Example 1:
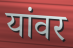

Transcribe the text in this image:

यांवर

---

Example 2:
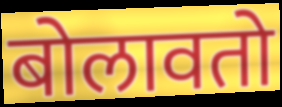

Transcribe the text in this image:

बोलावतो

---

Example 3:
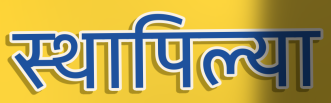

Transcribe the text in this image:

स्थापिल्या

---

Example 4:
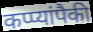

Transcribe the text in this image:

कप्प्यांपैकी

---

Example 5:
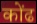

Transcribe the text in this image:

कोंढ